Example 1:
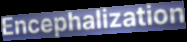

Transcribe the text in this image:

Encephalization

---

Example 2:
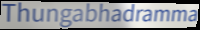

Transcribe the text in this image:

Thungabhadramma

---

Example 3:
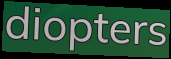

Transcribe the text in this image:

diopters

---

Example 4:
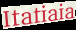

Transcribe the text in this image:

Itatiaia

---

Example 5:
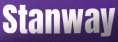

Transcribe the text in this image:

Stanway